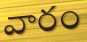
వారం